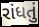
રાંધતું